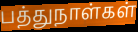
பத்துநாள்கள்